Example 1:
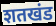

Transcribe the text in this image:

शतखंड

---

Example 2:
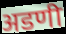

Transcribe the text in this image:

अडणी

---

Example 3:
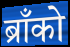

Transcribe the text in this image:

ब्राँको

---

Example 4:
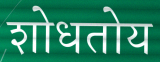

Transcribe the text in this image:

शोधतोय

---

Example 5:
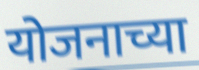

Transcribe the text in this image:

योजनाच्या